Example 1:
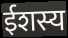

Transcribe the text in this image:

ईशस्य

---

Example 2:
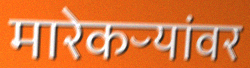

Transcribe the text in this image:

मारेकऱ्यांवर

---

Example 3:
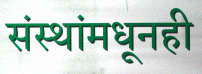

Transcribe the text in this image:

संस्थांमधूनही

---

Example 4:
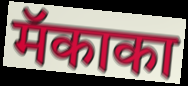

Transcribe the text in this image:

मॅकाका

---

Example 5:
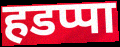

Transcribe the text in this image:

हडप्पा